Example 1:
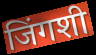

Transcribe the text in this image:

जिंगशी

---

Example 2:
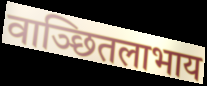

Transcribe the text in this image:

वाञ्छितलाभाय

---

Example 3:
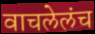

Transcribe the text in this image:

वाचलेलंच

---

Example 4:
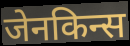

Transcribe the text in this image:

जेनकिन्स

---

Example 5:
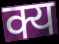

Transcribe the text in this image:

क्य